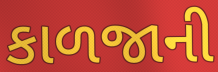
કાળજાની